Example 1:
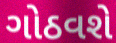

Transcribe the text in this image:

ગોઠવશે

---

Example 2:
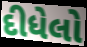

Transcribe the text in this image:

દીધેલો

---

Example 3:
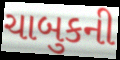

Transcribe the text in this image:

ચાબુકની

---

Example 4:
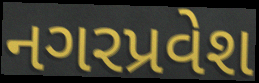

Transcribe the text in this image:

નગરપ્રવેશ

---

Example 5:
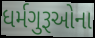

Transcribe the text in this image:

ધર્મગુરૂઓના